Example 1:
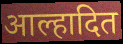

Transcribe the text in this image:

आल्हादित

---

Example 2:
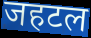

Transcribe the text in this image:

जहटल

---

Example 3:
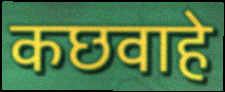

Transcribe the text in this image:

कछवाहे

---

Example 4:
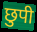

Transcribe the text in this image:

छुपी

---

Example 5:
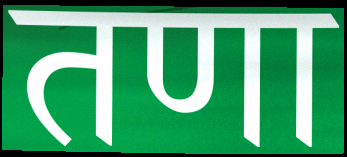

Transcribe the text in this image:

तणा